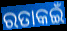
ରତାକଇଁ